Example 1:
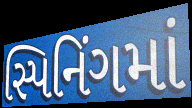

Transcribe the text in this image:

સ્પિનિંગમાં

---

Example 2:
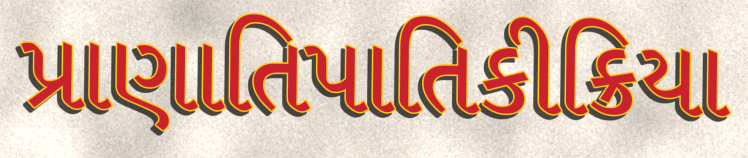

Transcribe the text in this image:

પ્રાણાતિપાતિકીક્રિયા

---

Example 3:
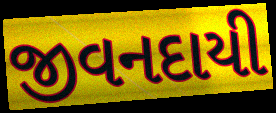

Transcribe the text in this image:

જીવનદાયી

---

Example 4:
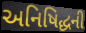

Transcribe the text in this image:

અનિષિદ્ધની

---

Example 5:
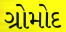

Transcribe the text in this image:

ગ્રોમોદ